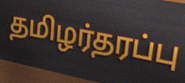
தமிழர்தரப்பு